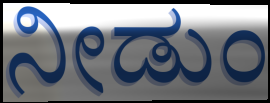
ನೀಡುಂ